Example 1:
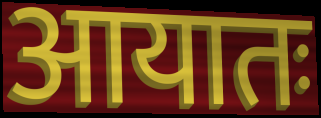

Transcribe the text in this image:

आयातः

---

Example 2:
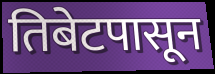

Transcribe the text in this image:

तिबेटपासून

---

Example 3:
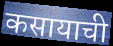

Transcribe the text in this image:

कसायाची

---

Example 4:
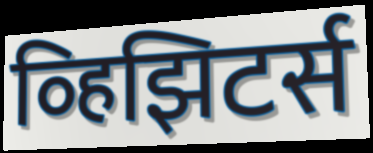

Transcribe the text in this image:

व्हिझिटर्स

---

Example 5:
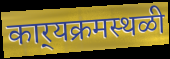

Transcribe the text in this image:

कार्यक्रमस्थळी